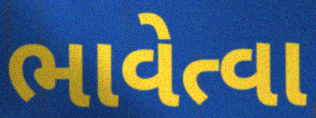
ભાવેત્વા